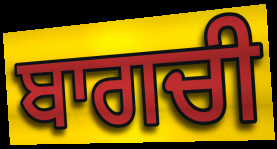
ਬਾਗਚੀ